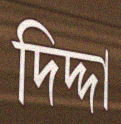
দিদ্দা